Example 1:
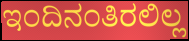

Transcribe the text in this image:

ಇಂದಿನಂತಿರಲಿಲ್ಲ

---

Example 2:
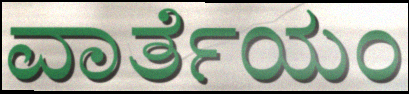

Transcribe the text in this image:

ವಾರ್ತೆಯಂ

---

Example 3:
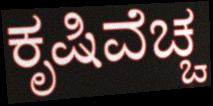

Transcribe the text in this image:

ಕೃಷಿವೆಚ್ಚ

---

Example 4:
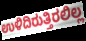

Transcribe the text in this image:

ಉಳಿದಿರುತ್ತಿರಲಿಲ್ಲ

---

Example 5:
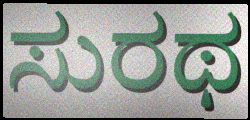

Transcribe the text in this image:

ಸುರಥ